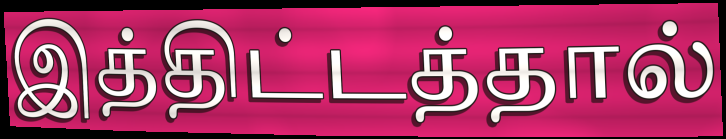
இத்திட்டத்தால்